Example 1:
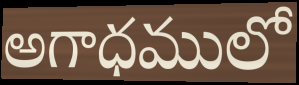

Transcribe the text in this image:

అగాధములో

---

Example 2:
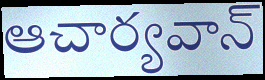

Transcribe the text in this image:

ఆచార్యవాన్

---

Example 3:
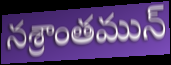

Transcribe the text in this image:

నశ్రాంతమున్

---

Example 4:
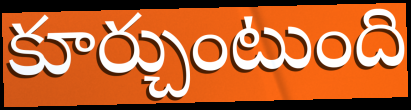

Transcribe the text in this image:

కూర్చుంటుంది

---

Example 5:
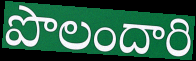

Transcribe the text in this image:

పొలందారి